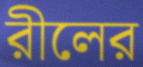
রীলের